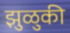
झुळुकी